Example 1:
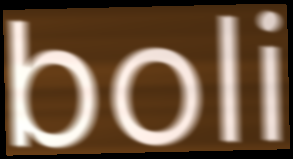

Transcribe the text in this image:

boli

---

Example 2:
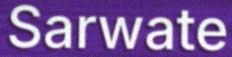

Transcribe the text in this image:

Sarwate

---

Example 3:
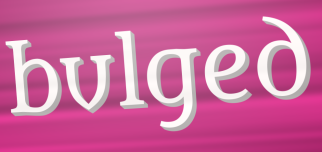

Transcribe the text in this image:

bulged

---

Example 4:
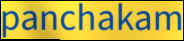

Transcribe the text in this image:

panchakam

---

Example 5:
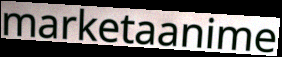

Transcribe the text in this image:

marketaanime